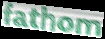
fathom